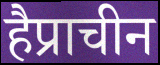
हैप्राचीन